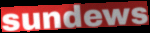
sundews